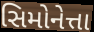
સિમોનેત્તા